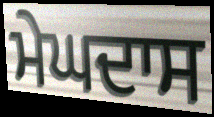
ਮੇਘਦਾਸ